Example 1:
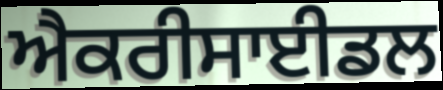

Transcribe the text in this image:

ਐਕਰੀਸਾਈਡਲ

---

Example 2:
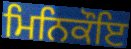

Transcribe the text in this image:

ਮਿਨਿਕੌਇ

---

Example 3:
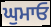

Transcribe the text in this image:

ਘੁਮਾਓ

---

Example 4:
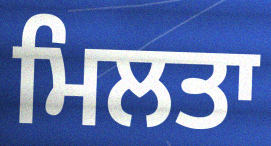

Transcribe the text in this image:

ਮਿਲਤਾ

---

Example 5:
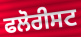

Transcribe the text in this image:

ਫਲੋਰੀਸਟ